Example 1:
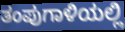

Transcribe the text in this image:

ತಂಪುಗಾಳಿಯಲ್ಲಿ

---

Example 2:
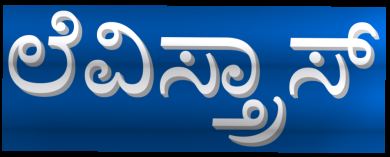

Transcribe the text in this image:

ಲೆವಿಸ್ತ್ರಾಸ್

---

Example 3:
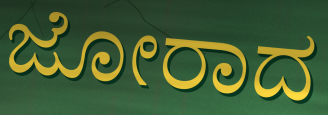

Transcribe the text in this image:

ಜೋರಾದ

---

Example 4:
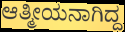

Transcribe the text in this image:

ಆತ್ಮೀಯನಾಗಿದ್ದ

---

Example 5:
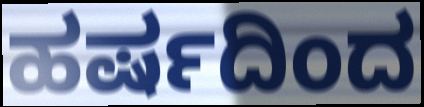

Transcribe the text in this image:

ಹರ್ಷದಿಂದ